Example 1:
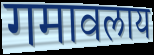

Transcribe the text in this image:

गमावलाय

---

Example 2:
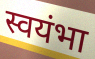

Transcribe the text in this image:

स्वयंभा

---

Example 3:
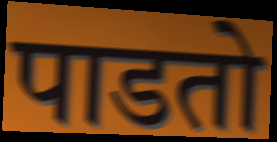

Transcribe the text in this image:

पाडतो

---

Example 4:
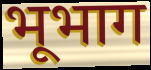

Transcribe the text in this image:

भूभाग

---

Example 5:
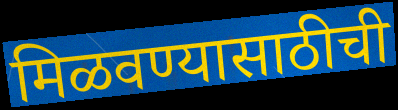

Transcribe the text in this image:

मिळवण्यासाठीची